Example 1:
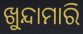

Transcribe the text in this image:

ଖୁନ୍ଦାମାରି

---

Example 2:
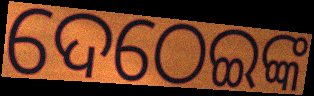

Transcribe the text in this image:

ଦେଠେଇଙ୍କ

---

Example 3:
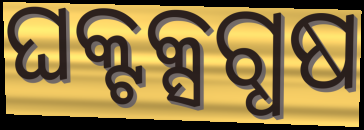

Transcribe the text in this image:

ଘକ୍ଟକ୍ସଗ୍ଧଷ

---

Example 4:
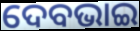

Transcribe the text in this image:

ଦେବଭାଇ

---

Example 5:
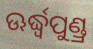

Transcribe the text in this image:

ଊର୍ଦ୍ଧ୍ୱପୁଣ୍ଡ୍ର